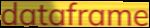
dataframe